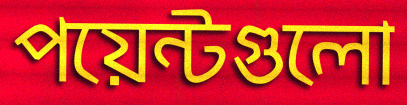
পয়েন্টগুলো